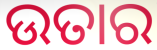
ଉତାର